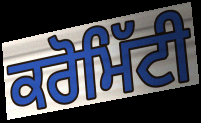
ਕਰੋਮਿੱਟੀ